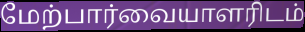
மேற்பார்வையாளரிடம்